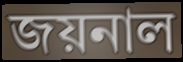
জয়নাল